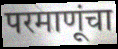
परमाणूंचा